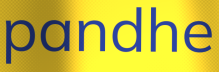
pandhe